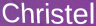
Christel